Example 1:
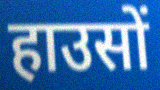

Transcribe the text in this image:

हाउसों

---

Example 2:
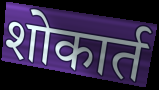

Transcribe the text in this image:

शोकार्त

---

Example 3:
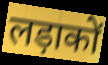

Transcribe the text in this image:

लड़ाकों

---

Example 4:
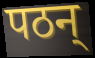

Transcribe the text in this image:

पठन्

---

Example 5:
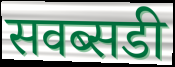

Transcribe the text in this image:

सवब्सडी